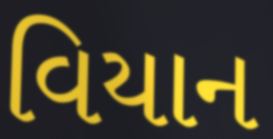
વિયાન